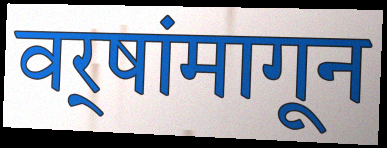
वर्षांमागून